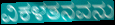
ವಿಕಳತನವನು